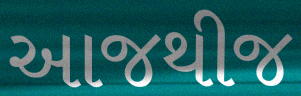
આજથીજ